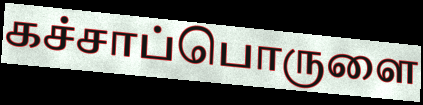
கச்சாப்பொருளை